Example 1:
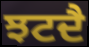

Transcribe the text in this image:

ਝਟਦੈ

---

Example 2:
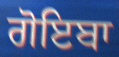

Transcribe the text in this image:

ਗੋਇਬਾ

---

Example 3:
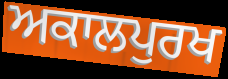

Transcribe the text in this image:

ਅਕਾਲਪੁਰਖ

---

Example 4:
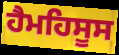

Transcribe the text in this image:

ਹੈਮਹਿਸੂਸ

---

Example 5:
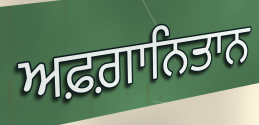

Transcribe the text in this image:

ਅਫ਼ਗ਼ਾਨਿਤਾਨ